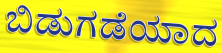
ಬಿಡುಗಡೆಯಾದ